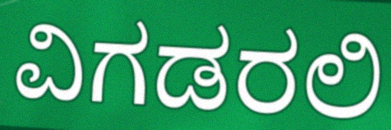
ವಿಗಡರಲಿ